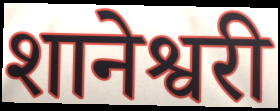
शानेश्वरी